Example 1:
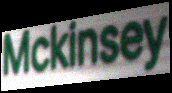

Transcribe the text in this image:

Mckinsey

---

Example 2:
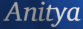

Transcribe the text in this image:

Anitya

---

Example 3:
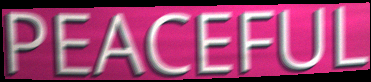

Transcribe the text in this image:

PEACEFUL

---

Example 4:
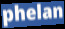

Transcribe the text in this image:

phelan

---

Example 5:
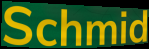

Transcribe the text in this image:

Schmid